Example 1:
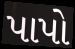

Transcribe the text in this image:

પાપો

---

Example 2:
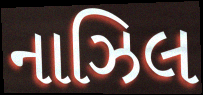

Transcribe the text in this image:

નાઝિલ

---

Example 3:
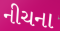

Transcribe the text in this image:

નીચના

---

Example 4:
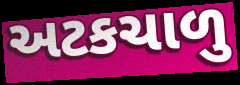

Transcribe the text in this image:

અટકચાળુ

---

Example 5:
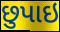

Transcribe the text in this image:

છુપાઇ